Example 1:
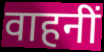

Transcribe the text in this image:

वाहनीं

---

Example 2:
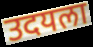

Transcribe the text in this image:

उदयला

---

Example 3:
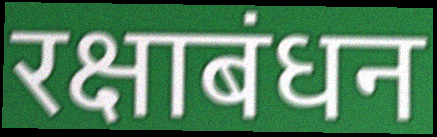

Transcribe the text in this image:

रक्षाबंधन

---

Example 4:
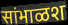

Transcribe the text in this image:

सांभाळश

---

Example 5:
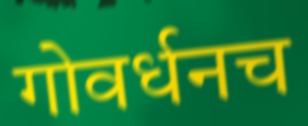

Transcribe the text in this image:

गोवर्धनच